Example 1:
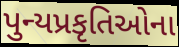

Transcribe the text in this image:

પુન્યપ્રકૃતિઓના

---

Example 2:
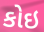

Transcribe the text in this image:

કોઇ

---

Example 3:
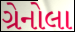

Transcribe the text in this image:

ગ્રેનોલા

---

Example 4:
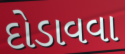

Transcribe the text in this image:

દોડાવવા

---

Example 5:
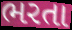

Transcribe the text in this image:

ભરતા